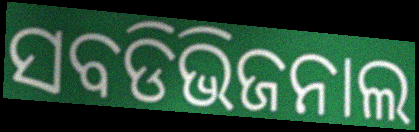
ସବଡିଭିଜନାଲ